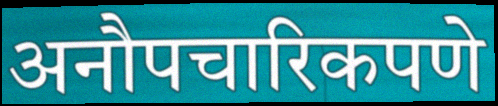
अनौपचारिकपणे